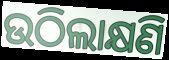
ଉଠିଲାକ୍ଷଣି